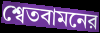
শ্বেতবামনের